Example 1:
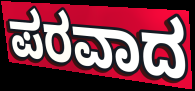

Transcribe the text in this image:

ಪರವಾದ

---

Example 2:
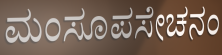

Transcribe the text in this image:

ಮಂಸೂಪಸೇಚನಂ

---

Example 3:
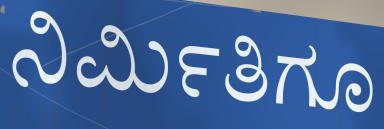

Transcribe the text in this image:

ನಿರ್ಮಿತಿಗೂ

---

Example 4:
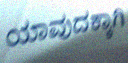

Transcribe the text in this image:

ಯಾವುದಕ್ಕಾಗಿ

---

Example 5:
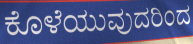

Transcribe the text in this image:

ಕೊಳೆಯುವುದರಿಂದ